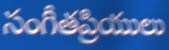
సంగీతప్రియులు